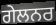
ਗੇਲਨਰ